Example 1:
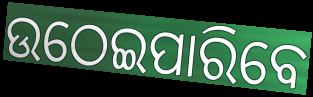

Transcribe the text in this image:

ଉଠେଇପାରିବେ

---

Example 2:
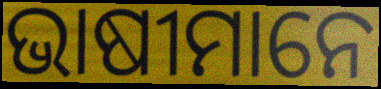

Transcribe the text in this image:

ଭାଷୀମାନେ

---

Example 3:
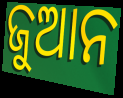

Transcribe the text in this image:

ଜୁଆନ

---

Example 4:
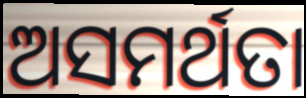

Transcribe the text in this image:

ଅସମର୍ଥତା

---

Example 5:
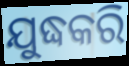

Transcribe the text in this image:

ଯୁଦ୍ଧକରି